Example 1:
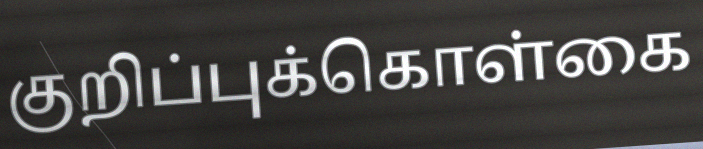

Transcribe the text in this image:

குறிப்புக்கொள்கை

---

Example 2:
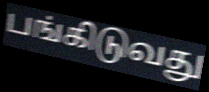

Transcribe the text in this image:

பங்கிடுவது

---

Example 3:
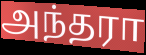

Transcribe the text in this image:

அந்தரா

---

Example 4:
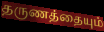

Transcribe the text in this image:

தருணத்தையும்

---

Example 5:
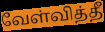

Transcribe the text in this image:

வேள்வித்தீ